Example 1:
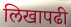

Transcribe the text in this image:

लिखापढी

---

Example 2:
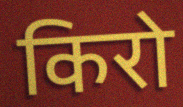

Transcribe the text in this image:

किरो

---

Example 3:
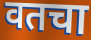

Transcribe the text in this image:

वतचा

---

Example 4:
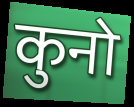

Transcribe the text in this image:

कुनो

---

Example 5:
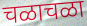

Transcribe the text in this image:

चळाचळा